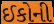
ઈકોની